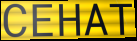
CEHAT